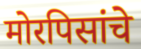
मोरपिसांचे